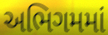
અભિગમમાં